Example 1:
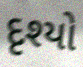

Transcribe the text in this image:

દૃશ્યો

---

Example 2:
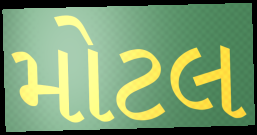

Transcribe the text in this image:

મોટલ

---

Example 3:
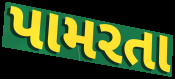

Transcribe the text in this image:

પામરતા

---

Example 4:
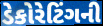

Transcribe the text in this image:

ડેકોરેટિંગની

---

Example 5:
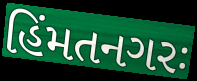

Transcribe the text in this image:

હિંમતનગરઃ